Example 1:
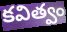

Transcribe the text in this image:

కవిత్వం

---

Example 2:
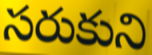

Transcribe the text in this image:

సరుకుని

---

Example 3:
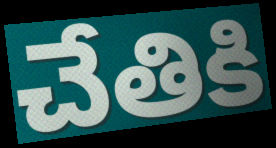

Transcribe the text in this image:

చేతికి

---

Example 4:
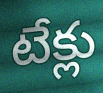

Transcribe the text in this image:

టేక్లు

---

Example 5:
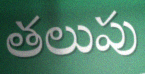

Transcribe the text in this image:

తలుపు